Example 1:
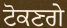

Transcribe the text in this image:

ਟੋਕਣਗੇ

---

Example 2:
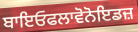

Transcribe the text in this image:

ਬਾਇਓਫਲਾਵੋਨੋਇਡਜ਼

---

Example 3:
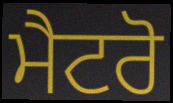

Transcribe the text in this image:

ਮੈਟਰੋ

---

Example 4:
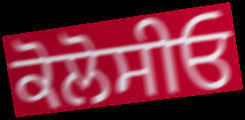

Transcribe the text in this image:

ਕੋਲੋਸੀਓ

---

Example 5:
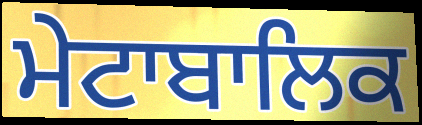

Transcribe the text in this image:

ਮੇਟਾਬਾਲਿਕ